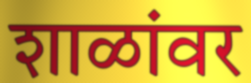
शाळांवर